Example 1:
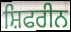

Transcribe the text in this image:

ਸ਼ਿਫਰੀਨ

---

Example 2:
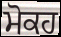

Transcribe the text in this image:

ਮੋਕਹ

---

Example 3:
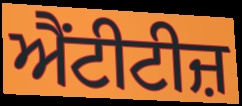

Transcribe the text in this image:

ਐਂਟੀਟੀਜ਼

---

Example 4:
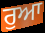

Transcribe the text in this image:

ਰੁਆ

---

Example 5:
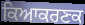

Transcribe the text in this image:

ਕਿਆਕਰਣਕ